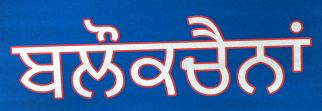
ਬਲੌਕਚੈਨਾਂ